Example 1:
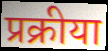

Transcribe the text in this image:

प्रक्रीया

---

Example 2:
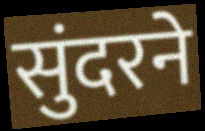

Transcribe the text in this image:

सुंदरने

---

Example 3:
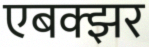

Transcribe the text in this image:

एबक्झर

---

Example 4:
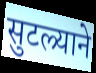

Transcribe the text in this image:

सुटल्याने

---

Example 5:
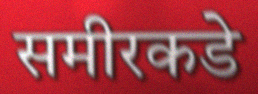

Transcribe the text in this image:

समीरकडे